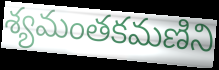
శ్యమంతకమణిని